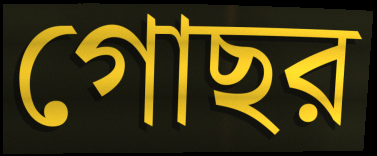
গোছর